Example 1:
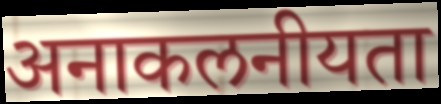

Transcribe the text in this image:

अनाकलनीयता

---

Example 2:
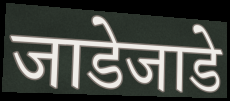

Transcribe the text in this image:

जाडेजाडे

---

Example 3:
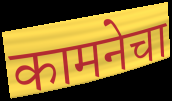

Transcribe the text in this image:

कामनेचा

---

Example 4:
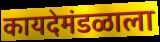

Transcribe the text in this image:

कायदेमंडळाला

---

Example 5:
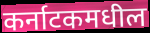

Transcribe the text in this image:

कर्नाटकमधील